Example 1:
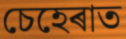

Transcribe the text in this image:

চেহেৰাত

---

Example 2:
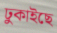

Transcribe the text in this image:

ঢুকাইছে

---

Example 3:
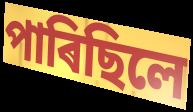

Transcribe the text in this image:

পাৰিছিলে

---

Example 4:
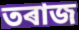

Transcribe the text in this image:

তৰাজ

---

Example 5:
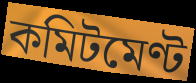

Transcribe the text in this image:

কমিটমেণ্ট